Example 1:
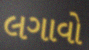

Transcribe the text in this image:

લગાવો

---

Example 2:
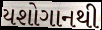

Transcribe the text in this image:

યશોગાનથી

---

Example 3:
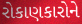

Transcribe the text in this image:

રોકાણકારોને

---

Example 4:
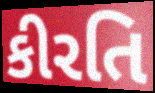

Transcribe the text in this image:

કીરતિ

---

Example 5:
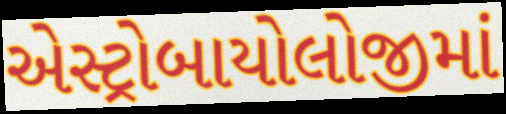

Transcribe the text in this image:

એસ્ટ્રોબાયોલોજીમાં